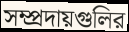
সম্প্রদায়গুলির